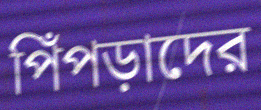
পিঁপড়াদের